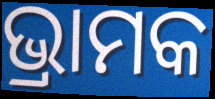
ଭ୍ରାମକ